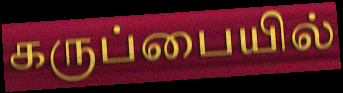
கருப்பையில்